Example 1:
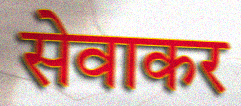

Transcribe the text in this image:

सेवाकर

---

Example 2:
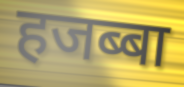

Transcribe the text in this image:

हजब्बा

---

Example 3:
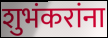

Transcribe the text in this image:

शुभंकरांना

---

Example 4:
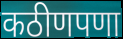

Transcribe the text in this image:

कठीणपणा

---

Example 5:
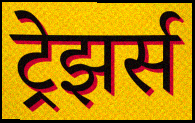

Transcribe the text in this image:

ट्रेझर्स